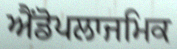
ਐਂਡੋਪਲਾਜਮਿਕ